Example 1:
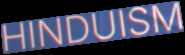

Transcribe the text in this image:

HINDUISM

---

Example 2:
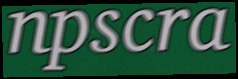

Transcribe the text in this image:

npscra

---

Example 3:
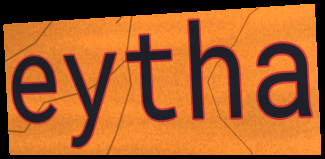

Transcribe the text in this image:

eytha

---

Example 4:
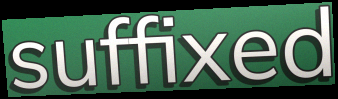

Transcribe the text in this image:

suffixed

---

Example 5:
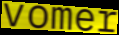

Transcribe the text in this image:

vomer